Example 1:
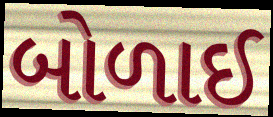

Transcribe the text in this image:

બોળાઈ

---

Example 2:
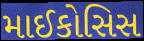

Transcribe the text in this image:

માઈકોસિસ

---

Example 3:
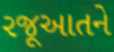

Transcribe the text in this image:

રજૂઆતને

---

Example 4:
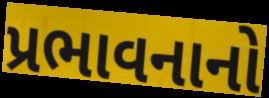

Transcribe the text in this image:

પ્રભાવનાનો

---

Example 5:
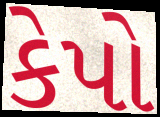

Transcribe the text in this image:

કેપો